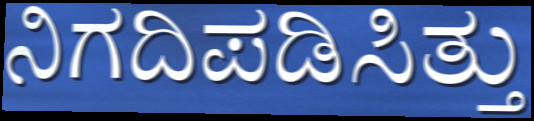
ನಿಗದಿಪಡಿಸಿತ್ತು